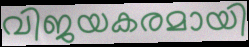
വിജയകരമായി